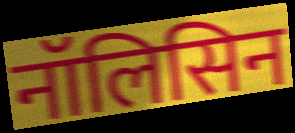
नॉलिसिन